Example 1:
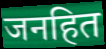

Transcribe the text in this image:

जनहित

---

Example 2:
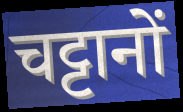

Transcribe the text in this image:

चट्टानों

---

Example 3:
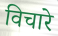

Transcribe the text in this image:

विचारे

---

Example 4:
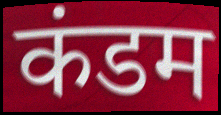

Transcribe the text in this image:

कंडम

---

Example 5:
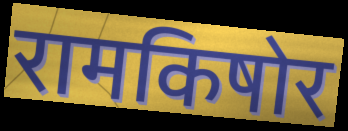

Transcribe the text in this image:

रामकिषोर